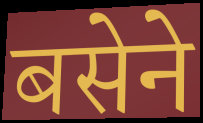
बसेने